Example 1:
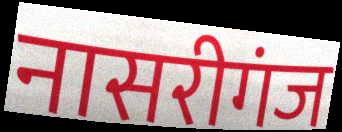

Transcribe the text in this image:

नासरीगंज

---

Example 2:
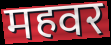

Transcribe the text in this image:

महवर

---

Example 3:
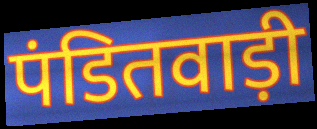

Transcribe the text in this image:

पंडितवाड़ी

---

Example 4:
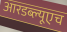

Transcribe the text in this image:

आरडब्ल्यूएच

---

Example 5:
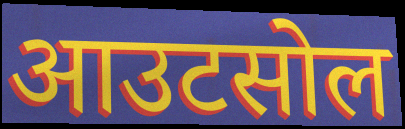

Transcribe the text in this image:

आउटसोल